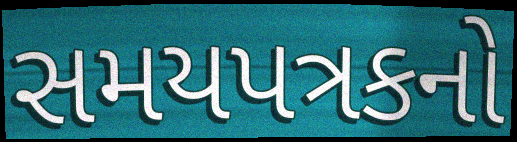
સમયપત્રકનો